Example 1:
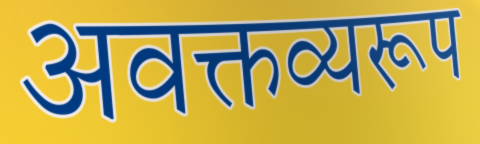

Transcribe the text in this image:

अवक्तव्यरूप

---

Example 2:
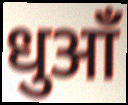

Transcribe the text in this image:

धुआँ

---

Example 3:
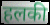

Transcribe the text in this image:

हलकी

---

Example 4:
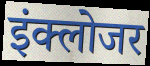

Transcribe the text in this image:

इंक्लोजर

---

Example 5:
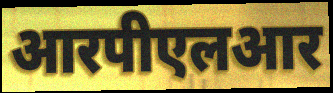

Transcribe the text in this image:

आरपीएलआर